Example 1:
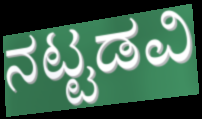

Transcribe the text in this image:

ನಟ್ಟಡವಿ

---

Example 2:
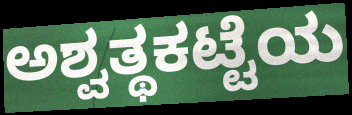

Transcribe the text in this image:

ಅಶ್ವತ್ಥಕಟ್ಟೆಯ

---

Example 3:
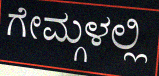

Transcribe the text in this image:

ಗೇಮ್ಗಳಲ್ಲಿ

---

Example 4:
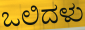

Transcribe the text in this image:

ಒಲಿದಳು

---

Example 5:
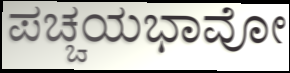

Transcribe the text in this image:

ಪಚ್ಚಯಭಾವೋ